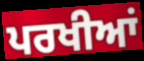
ਪਰਖੀਆਂ